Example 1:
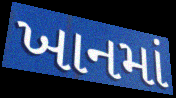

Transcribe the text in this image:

ખાનમાં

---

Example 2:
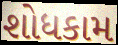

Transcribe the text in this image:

શોધકામ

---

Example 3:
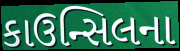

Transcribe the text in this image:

કાઉન્સિલના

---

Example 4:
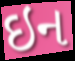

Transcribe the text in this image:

ઇન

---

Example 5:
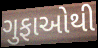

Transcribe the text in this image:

ગુફાઓથી